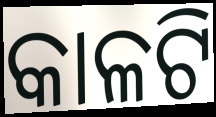
କାଳଟି